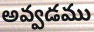
అవ్వడము